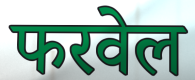
फरवेल